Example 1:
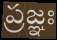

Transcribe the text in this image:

ప్రజ్ఞః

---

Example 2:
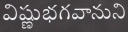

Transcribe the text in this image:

విష్ణుభగవానుని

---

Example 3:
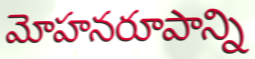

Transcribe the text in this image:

మోహనరూపాన్ని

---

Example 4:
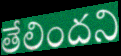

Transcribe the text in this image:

తేలిందని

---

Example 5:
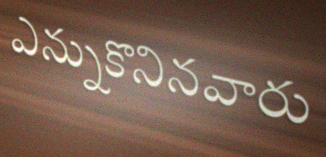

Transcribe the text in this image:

ఎన్నుకొనినవారు